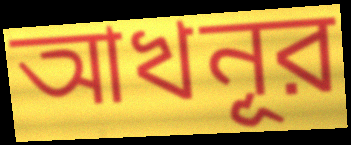
আখনূর